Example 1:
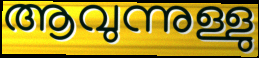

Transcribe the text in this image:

ആവുന്നുള്ളു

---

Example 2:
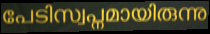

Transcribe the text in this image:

പേടിസ്വപ്നമായിരുന്നു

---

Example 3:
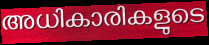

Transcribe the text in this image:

അധികാരികളുടെ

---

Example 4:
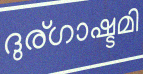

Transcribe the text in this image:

ദുര്ഗാഷ്ടമി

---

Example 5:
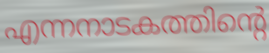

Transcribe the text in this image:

എന്നനാടകത്തിന്റെ